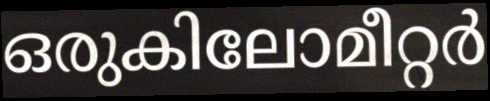
ഒരുകിലോമീറ്റർ